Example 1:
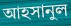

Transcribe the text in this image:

আহসানুল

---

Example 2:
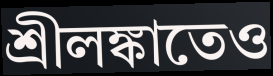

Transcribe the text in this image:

শ্রীলঙ্কাতেও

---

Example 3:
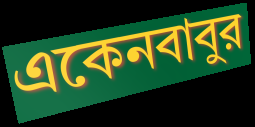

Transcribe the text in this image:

একেনবাবুর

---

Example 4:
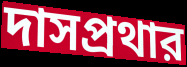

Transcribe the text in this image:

দাসপ্রথার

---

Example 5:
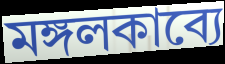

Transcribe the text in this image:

মঙ্গলকাব্যে